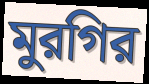
মুরগির